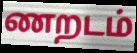
ணறடம்